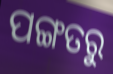
ପଙ୍ଗତରୁ